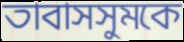
তাবাসসুমকে